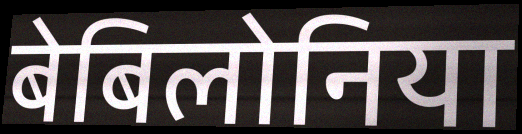
बेबिलोनिया